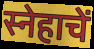
स्नेहाचें